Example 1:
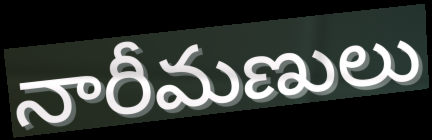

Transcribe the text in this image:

నారీమణులు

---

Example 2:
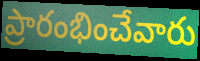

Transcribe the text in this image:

ప్రారంభించేవారు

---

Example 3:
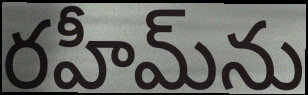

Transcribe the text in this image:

రహీమ్‌ను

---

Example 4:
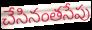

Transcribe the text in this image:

చేసినంతసేపు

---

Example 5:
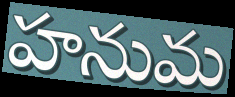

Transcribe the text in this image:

హనుమ